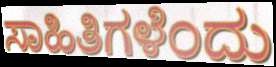
ಸಾಹಿತಿಗಳೆಂದು